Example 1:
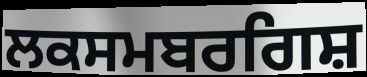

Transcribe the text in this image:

ਲਕਸਮਬਰਗਿਸ਼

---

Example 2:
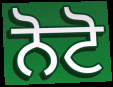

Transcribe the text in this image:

ਨੋਟੋ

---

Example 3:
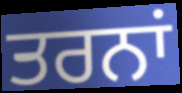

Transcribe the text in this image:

ਤਰਨਾਂ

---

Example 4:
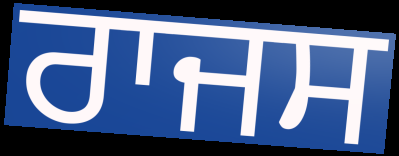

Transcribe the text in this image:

ਰਾਜਸ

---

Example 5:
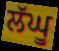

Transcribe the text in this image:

ਲੱਘੂ